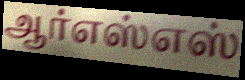
ஆர்எஸ்எஸ்